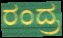
ರಂದ್ರ